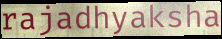
rajadhyaksha